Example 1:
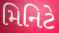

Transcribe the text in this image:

મિનિટે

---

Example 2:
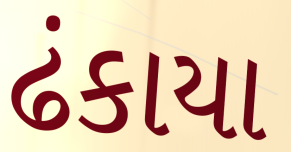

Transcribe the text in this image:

ઢંકાયા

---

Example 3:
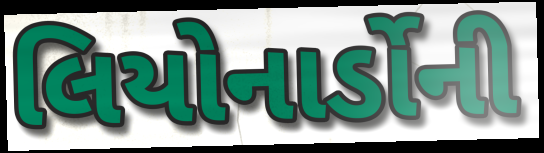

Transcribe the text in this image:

લિયોનાર્ડોની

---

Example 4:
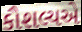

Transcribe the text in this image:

કૌશલ્યએ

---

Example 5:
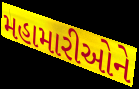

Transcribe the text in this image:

મહામારીઓને